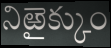
నిఱైక్కుం